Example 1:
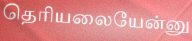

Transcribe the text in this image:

தெரியலையேன்னு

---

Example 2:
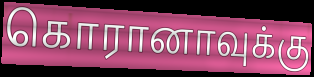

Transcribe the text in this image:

கொரானாவுக்கு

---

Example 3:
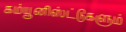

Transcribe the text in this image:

கம்யூனிஸ்ட்டுகளும்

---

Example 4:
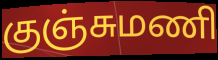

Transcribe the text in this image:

குஞ்சுமணி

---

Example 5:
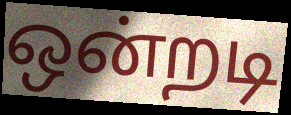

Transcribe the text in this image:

ஒன்றடி